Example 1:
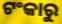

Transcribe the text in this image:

ଟଂକାରୁ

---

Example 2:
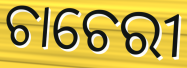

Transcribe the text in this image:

ଚାଚେରୀ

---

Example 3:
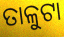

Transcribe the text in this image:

ତାଳୁଟା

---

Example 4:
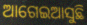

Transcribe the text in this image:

ଆଗେଇଆସୁଛି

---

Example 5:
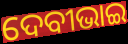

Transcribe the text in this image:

ଦେବୀଭାଇ